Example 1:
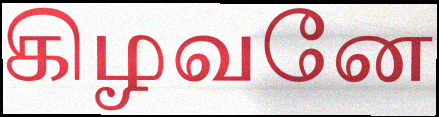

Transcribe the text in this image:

கிழவனே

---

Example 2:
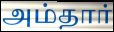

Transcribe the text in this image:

அம்தார்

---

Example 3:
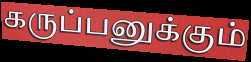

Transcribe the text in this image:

கருப்பனுக்கும்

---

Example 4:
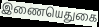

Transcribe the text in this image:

இணையெதுகை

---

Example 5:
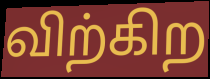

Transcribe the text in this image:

விற்கிற